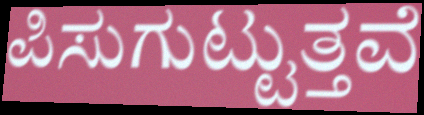
ಪಿಸುಗುಟ್ಟುತ್ತವೆ